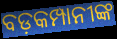
ବଡ଼କମ୍ପାନୀଙ୍କ